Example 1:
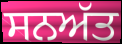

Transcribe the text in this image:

ਸਨਅੱਤ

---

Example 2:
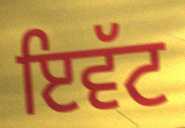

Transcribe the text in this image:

ਇਵੱਟ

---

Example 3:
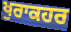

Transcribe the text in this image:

ਖੁਰਾਕਹਰ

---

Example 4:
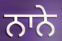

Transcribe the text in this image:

ਨਾਨੇ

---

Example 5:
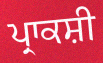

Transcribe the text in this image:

ਪ੍ਰਾਕਸ਼ੀ